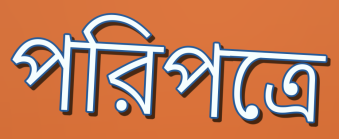
পরিপত্রে